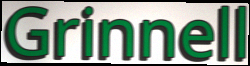
Grinnell